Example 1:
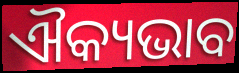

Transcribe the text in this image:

ଐକ୍ୟଭାବ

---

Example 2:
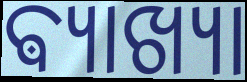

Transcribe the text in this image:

ଵ୍ଯାଖ୍ଯା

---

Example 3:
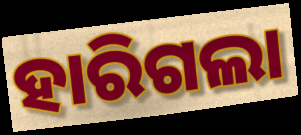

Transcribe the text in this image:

ହାରିଗଲା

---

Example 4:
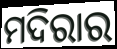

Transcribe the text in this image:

ମଦିରାର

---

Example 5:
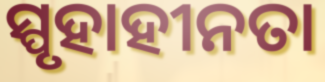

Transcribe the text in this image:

ସ୍ପୃହାହୀନତା